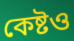
কেষ্টও